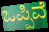
ಒಪ್ಪಿವೆ